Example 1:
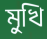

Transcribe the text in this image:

মুখি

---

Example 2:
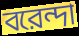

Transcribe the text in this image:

বরেন্দা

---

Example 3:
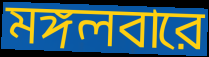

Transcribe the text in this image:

মঙ্গলবারে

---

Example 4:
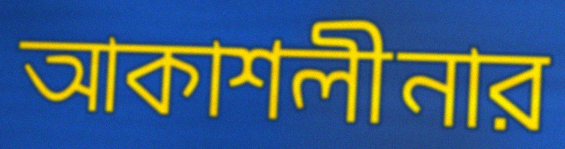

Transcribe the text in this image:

আকাশলীনার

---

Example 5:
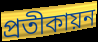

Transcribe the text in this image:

প্রতীকায়ন